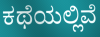
ಕಥೆಯಲ್ಲಿವೆ